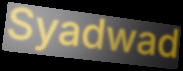
Syadwad